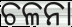
ଚଳନା